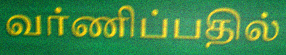
வர்ணிப்பதில்